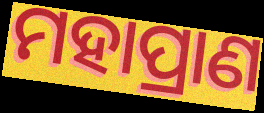
ମହାପ୍ରାଣ